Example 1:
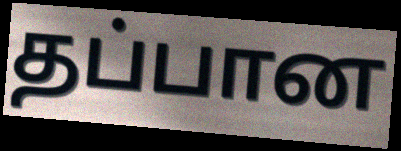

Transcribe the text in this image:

தப்பான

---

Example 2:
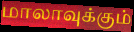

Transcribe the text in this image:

மாலாவுக்கும்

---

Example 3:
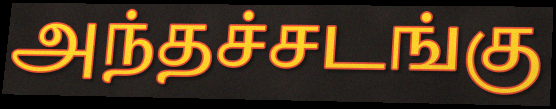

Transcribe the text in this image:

அந்தச்சடங்கு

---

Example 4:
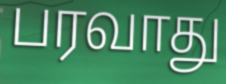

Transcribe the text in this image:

பரவாது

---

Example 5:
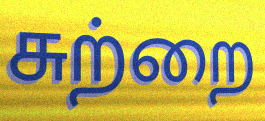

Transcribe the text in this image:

சுற்றை